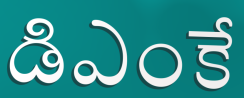
డిఎంకే